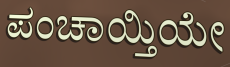
ಪಂಚಾಯ್ತಿಯೇ